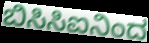
ಬಿಸಿಸಿಐನಿಂದ